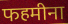
फहमीना